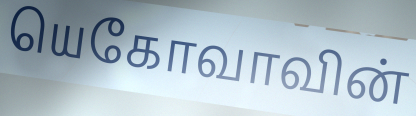
யெகோவாவின்